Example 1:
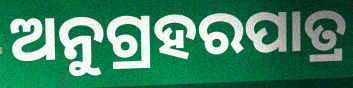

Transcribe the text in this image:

ଅନୁଗ୍ରହରପାତ୍ର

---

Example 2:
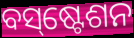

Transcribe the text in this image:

ବସ୍‌ଷ୍ଟେଶନ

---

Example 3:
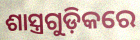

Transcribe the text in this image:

ଶାସ୍ତ୍ରଗୁଡ଼ିକରେ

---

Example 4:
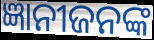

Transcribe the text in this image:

ଜ୍ଞାନୀଜନଙ୍କ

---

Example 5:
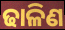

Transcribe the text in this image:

ଢାଳିଣ